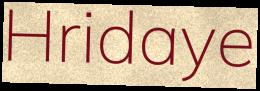
Hridaye